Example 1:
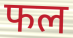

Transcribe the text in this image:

फल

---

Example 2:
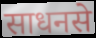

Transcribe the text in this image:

साधनसे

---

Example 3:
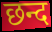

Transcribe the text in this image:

छन्द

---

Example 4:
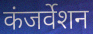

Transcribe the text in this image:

कंजर्वेशन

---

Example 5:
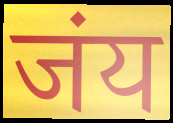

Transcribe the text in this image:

जंय